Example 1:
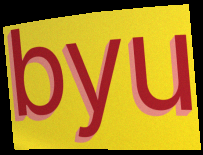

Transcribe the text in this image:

byu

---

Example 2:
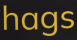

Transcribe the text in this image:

hags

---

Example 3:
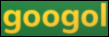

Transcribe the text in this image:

googol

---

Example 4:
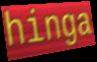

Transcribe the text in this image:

hinga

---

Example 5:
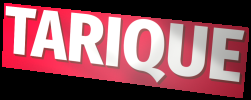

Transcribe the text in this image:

TARIQUE